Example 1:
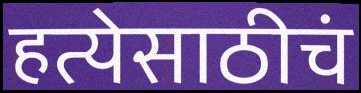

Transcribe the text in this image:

हत्येसाठीचं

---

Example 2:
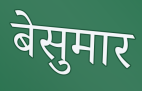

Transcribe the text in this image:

बेसुमार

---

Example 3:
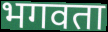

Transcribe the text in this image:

भगवता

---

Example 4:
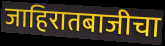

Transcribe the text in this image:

जाहिरातबाजीचा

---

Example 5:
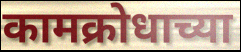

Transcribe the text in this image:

कामक्रोधाच्या